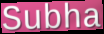
Subha